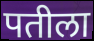
पतीला